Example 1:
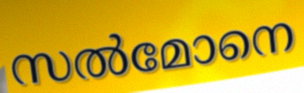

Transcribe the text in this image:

സൽമോനെ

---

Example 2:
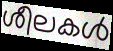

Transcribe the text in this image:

ശീലകൾ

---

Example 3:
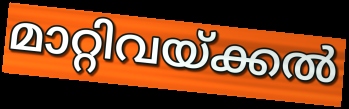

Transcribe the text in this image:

മാറ്റിവയ്ക്കൽ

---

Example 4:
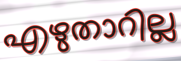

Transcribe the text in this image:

എഴുതാറില്ല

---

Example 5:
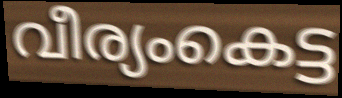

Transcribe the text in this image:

വീര്യംകെട്ട